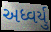
અધ્વર્યુ